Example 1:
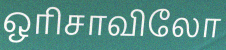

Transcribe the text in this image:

ஒரிசாவிலோ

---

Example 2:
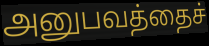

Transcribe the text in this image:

அனுபவத்தைச்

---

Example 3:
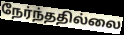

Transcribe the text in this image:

நேர்ந்ததில்லை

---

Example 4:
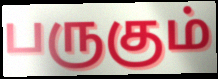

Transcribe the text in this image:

பருகும்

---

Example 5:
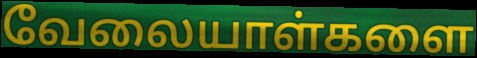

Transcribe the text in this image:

வேலையாள்களை